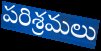
పరిశ్రమలు